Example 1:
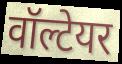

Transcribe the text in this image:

वॉल्टेयर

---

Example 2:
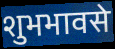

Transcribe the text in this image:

शुभभावसे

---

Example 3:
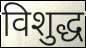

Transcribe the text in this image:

विशुद्ध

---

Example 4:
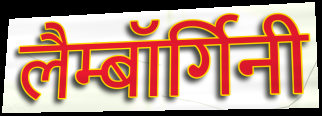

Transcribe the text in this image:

लैम्बॉर्गिनी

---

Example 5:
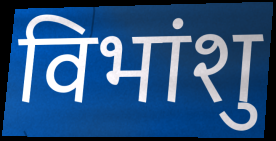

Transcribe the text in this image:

विभांशु